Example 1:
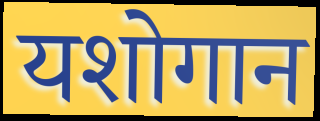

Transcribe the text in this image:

यशोगान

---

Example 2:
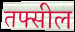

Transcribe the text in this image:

तफ्सील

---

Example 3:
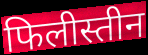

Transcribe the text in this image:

फिलीस्तीन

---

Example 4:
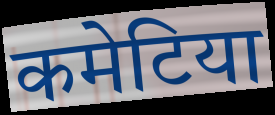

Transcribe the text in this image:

कमेटिया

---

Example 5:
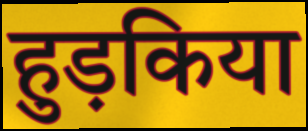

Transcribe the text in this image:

हुड़किया